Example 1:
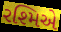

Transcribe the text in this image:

રશ્મિએ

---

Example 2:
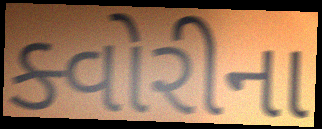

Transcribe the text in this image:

ક્વોરીના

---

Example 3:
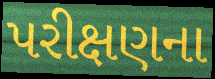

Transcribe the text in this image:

પરીક્ષણના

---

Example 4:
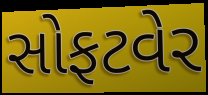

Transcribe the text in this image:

સોફટવેર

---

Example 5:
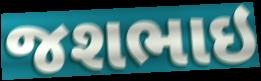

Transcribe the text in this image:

જશભાઇ